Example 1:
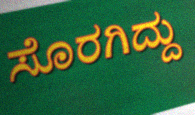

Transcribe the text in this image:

ಸೊರಗಿದ್ದು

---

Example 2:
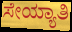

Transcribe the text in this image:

ಸೇಯ್ಯಾತಿ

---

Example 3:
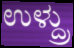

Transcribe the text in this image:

ಉಳ್ದ್ರು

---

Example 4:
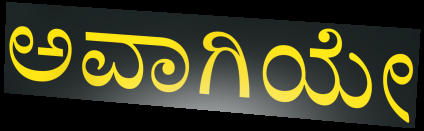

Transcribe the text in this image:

ಅವಾಗಿಯೇ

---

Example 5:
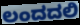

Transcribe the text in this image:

ಲಂದದಲಿ